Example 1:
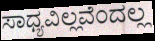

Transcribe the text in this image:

ಸಾಧ್ಯವಿಲ್ಲವೆಂದಲ್ಲ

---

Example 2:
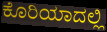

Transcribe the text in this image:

ಕೊರಿಯಾದಲ್ಲಿ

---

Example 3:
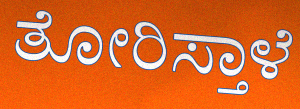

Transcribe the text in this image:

ತೋರಿಸ್ತಾಳೆ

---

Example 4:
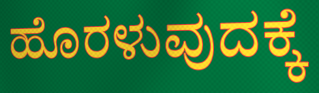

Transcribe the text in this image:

ಹೊರಳುವುದಕ್ಕೆ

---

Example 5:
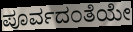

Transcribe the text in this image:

ಪೂರ್ವದಂತೆಯೇ